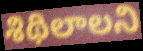
శిథిలాలని